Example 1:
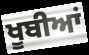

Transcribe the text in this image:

ਖੂਬੀਆਂ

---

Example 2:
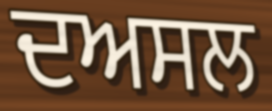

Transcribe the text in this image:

ਦਅਸਲ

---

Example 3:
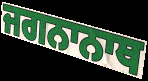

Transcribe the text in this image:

ਜਗਨਾਨਾਥ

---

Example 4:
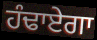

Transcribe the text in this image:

ਹੰਢਾਏਗਾ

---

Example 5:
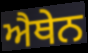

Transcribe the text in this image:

ਐਥੇਨ